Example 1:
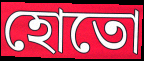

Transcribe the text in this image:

হোতো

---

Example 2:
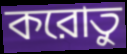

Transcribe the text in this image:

করোতু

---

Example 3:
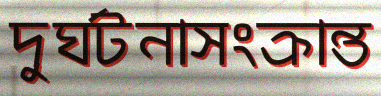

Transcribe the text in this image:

দুর্ঘটনাসংক্রান্ত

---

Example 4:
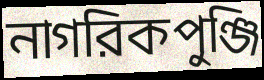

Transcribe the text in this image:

নাগরিকপুঞ্জি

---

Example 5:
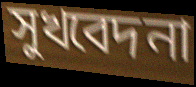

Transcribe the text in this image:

সুখবেদনা